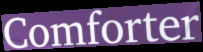
Comforter